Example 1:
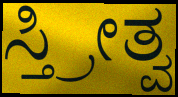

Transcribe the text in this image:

ಸ್ತ್ರೀತ್ವ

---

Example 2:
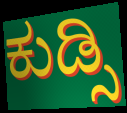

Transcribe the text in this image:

ಕುಡ್ಸಿ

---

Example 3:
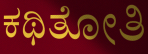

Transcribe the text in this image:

ಕಥಿತೋತಿ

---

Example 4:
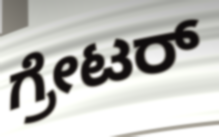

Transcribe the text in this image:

ಗ್ರೇಟರ್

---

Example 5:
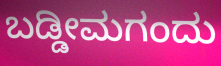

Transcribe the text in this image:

ಬಡ್ಡೀಮಗಂದು